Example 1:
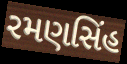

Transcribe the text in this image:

રમણસિંહ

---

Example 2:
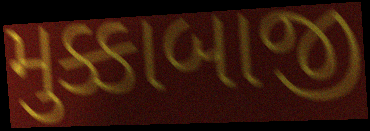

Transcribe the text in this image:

મુક્કાબાજી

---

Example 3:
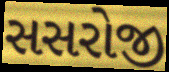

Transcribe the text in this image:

સસરોજી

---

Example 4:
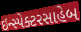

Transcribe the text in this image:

ઇન્સ્પેક્ટરસાહેબ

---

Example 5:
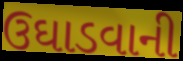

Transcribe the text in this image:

ઉઘાડવાની